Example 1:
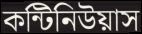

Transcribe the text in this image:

কন্টিনিউয়াস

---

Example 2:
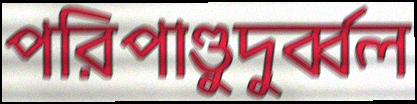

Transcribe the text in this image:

পরিপাণ্ডুদুর্ব্বল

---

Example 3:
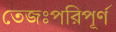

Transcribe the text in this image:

তেজঃপরিপূর্ণ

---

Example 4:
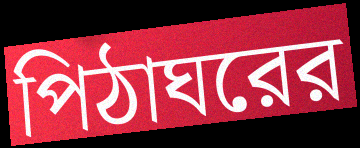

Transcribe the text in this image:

পিঠাঘরের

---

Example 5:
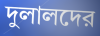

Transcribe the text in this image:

দুলালদের